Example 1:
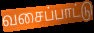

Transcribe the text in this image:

வசைப்பாட்டு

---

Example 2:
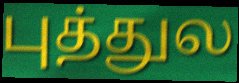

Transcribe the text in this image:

புத்துல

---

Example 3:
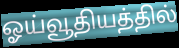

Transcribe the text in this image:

ஓய்வூதியத்தில்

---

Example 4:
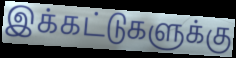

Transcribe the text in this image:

இக்கட்டுகளுக்கு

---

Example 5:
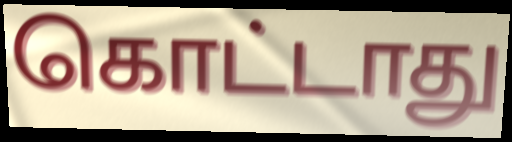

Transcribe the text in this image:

கொட்டாது